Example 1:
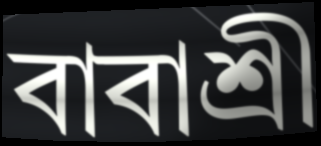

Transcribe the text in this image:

বাবাশ্রী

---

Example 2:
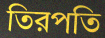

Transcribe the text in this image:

তিরপতি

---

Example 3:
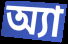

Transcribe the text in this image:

অ্যা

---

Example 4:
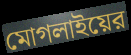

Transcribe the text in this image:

মোগলাইয়ের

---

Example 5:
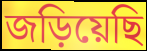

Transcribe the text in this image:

জড়িয়েছি